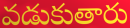
వడుకుతారు